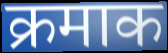
क्रमाक